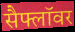
सैफ्लॉवर